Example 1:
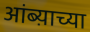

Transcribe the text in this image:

आंब्य़ाच्या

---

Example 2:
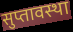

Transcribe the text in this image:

सुप्तावस्था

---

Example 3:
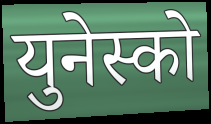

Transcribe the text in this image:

युनेस्को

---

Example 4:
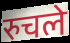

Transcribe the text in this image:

रुचले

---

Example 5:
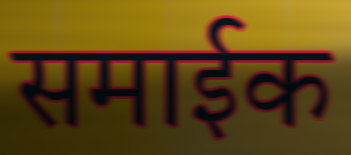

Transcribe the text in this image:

समाईक